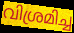
വിശ്രമിച്ച